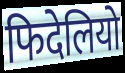
फिदेलियो